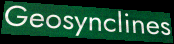
Geosynclines